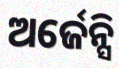
ଅର୍ଜେନ୍ସି